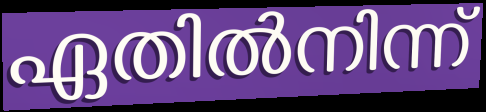
ഏതിൽനിന്ന്